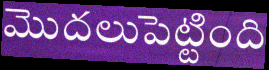
మొదలుపెట్టింది